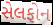
સેલફોન